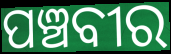
ପଞ୍ଚବୀର